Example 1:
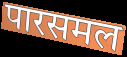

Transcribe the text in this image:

पारसमल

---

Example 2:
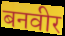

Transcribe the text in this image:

बनवीर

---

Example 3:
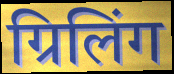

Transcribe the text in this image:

ग्रिलिंग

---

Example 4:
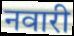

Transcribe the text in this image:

नवारी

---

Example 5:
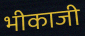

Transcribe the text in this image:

भीकाजी